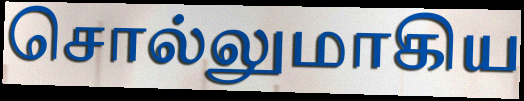
சொல்லுமாகிய